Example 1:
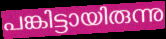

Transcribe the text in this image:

പങ്കിട്ടായിരുന്നു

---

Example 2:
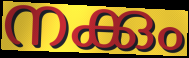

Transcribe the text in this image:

നക്കും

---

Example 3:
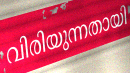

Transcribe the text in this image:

വിരിയുന്നതായി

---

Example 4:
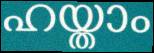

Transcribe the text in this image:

ഹയ്താം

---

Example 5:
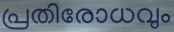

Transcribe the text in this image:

പ്രതിരോധവും